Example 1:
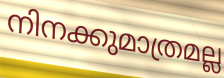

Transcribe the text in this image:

നിനക്കുമാത്രമല്ല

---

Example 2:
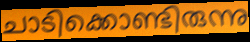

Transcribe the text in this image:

ചാടിക്കൊണ്ടിരുന്നു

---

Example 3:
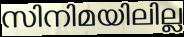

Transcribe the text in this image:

സിനിമയിലില്ല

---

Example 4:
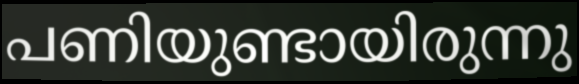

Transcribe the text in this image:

പണിയുണ്ടായിരുന്നു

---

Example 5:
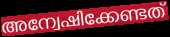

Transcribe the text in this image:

അന്വേഷിക്കേണ്ടത്